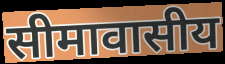
सीमावासीय